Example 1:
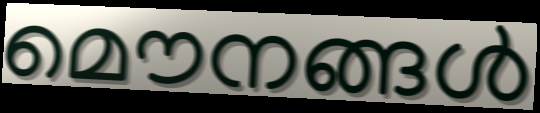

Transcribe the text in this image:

മൌനങ്ങൾ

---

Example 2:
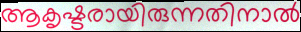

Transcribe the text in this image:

ആകൃഷ്ടരായിരുന്നതിനാൽ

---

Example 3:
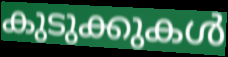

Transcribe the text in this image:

കുടുക്കുകൾ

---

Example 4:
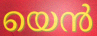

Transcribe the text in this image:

യെൻ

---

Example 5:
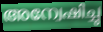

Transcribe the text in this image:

അന്വേഷിച്ചു